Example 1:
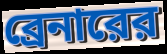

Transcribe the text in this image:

ব্রেনারের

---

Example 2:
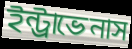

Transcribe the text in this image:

ইন্ট্রাভেনাস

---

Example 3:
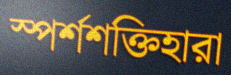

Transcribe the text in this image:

স্পর্শশক্তিহারা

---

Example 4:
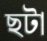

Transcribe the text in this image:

ছটা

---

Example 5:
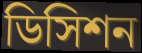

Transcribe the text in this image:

ডিসিশন